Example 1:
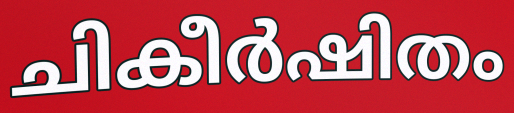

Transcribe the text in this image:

ചികീർഷിതം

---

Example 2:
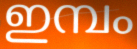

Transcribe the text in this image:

ഇമ്പം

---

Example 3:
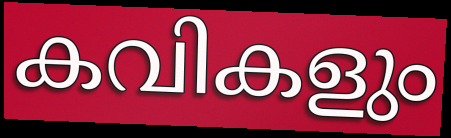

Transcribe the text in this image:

കവികളും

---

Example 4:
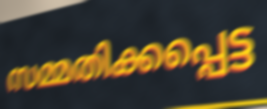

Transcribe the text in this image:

സമ്മതിക്കപ്പെട്ട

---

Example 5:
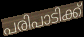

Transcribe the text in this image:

പരിപാടിക്ക്